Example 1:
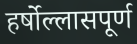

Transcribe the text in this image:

हर्षोल्लासपूर्ण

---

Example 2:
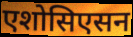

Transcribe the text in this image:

एशोसिएसन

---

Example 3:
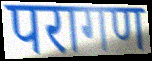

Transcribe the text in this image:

परागण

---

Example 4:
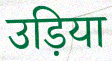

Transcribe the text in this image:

उड़िया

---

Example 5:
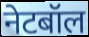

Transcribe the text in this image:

नेटबॉल